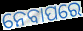
ନେବାପରେ